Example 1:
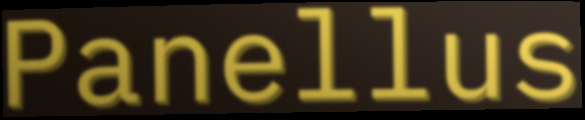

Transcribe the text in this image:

Panellus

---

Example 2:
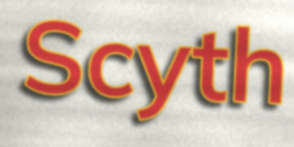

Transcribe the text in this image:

Scyth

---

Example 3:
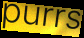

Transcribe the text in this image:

purrs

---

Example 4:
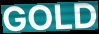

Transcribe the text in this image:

GOLD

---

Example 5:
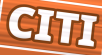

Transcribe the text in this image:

CITI